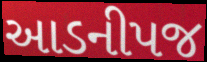
આડનીપજ